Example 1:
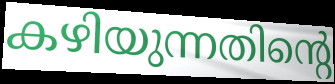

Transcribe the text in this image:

കഴിയുന്നതിന്റെ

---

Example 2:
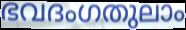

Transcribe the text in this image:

ഭവദംഗതുലാം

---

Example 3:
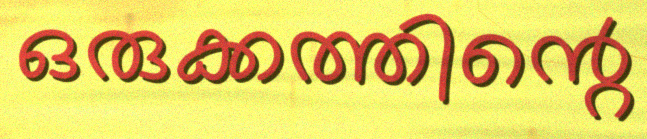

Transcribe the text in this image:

ഒരുക്കത്തിന്റെ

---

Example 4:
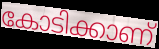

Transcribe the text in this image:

കോടിക്കാണ്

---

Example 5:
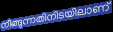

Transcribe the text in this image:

നീങ്ങുന്നതിനിടയിലാണ്